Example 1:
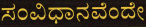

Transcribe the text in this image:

ಸಂವಿಧಾನವೆಂದೇ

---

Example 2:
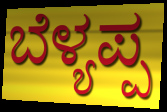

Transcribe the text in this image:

ಬೆಳ್ಯಪ್ಪ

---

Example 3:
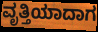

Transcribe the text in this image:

ವೃತ್ತಿಯಾದಾಗ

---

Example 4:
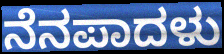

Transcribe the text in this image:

ನೆನಪಾದಳು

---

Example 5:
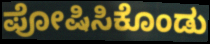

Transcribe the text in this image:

ಪೋಷಿಸಿಕೊಂಡು